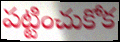
పట్టించుకోక